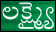
లక్ష్మ్యై